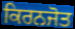
ਕਿਰਨਜੋਤ